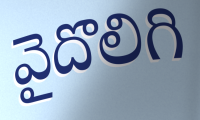
వైదొలిగి